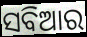
ସବିଆର